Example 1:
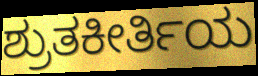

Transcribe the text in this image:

ಶ್ರುತಕೀರ್ತಿಯ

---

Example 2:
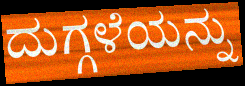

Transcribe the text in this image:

ದುಗ್ಗಳೆಯನ್ನು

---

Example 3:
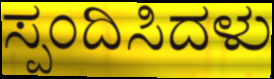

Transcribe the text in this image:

ಸ್ಪಂದಿಸಿದಳು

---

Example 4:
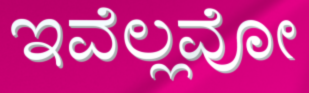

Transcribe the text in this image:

ಇವೆಲ್ಲವೋ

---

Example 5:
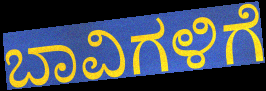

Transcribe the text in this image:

ಬಾವಿಗಳಿಗೆ